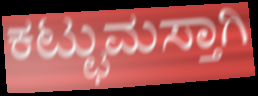
ಕಟ್ಟುಮಸ್ತಾಗಿ